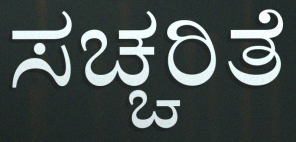
ಸಚ್ಚರಿತೆ